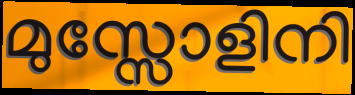
മുസ്സോളിനി